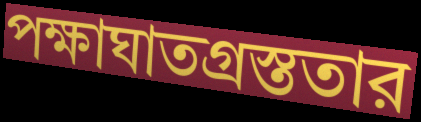
পক্ষাঘাতগ্রস্ততার